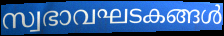
സ്വഭാവഘടകങ്ങൾ